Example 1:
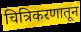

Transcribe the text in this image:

चित्रिकरणातून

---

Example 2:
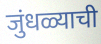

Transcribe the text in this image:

जुंधळ्याची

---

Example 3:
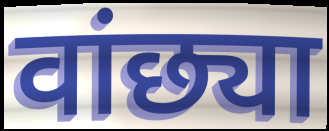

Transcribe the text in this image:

वांछ्या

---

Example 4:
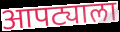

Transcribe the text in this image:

आपट्याला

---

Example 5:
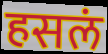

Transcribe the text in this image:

हसलं